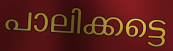
പാലിക്കട്ടെ